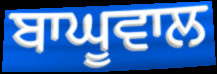
ਬਾਘੂਵਾਲ